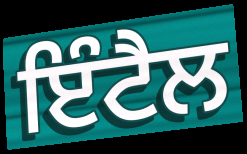
ਇੰਟੈਲ